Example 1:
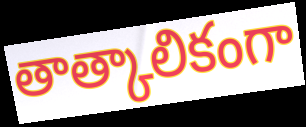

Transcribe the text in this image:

తాత్కాలికంగా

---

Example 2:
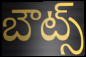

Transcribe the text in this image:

బౌట్స్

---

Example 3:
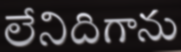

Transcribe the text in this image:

లేనిదిగాను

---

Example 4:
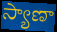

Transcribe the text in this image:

స్యాణా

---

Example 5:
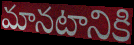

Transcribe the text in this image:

మానటానికి